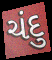
ચંદુ